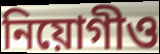
নিয়োগীও